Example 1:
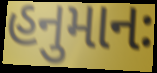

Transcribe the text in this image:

હનુમાનઃ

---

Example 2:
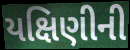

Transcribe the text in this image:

યક્ષિણીની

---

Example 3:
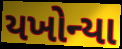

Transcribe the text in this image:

યખોન્યા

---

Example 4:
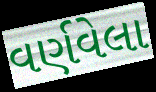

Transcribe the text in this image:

વર્ણવેલા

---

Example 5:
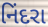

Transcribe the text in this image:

નિંદરા